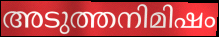
അടുത്തനിമിഷം